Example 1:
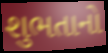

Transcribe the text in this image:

શુભતાનો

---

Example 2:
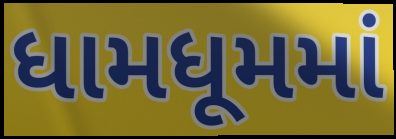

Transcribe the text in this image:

ધામધૂમમાં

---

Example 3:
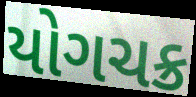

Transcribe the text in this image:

યોગચક્ર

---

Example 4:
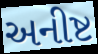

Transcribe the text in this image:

અનીષ્ટ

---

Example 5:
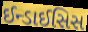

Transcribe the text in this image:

ઈન્ડાઈસિસ